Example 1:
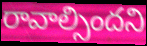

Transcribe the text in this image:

రావాల్సిందని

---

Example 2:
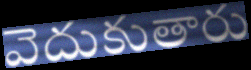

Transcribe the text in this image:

వెదుకుతారు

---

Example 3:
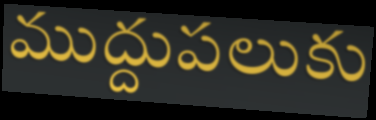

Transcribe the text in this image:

ముద్దుపలుకు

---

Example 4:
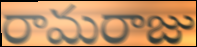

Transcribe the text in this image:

రామరాజు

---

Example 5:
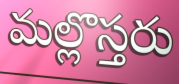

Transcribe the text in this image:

మల్లొస్తరు